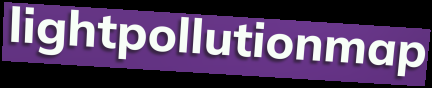
lightpollutionmap